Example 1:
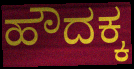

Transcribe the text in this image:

ಹೌದಕ್ಕ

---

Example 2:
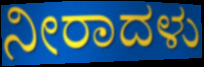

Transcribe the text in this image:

ನೀರಾದಳು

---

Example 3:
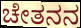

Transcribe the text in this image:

ಚೇತನನ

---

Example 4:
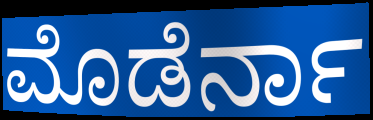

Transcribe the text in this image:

ಮೊಡೆರ್ನಾ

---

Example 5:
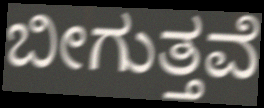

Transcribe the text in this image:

ಬೀಗುತ್ತವೆ